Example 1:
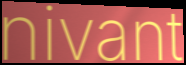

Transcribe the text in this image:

nivant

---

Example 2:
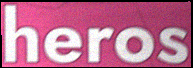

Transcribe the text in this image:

heros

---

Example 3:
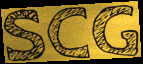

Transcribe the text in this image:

SCG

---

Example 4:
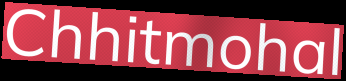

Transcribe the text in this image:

Chhitmohal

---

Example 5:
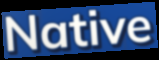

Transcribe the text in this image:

Native